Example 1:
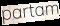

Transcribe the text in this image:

partam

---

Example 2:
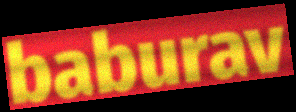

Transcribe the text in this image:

baburav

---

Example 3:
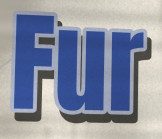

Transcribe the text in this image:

Fur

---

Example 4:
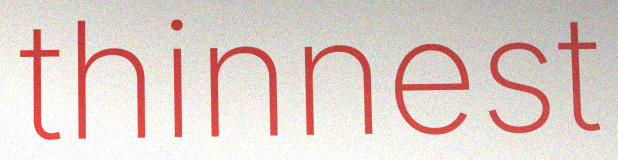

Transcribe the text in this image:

thinnest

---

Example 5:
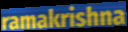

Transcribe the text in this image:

ramakrishna